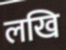
लखि